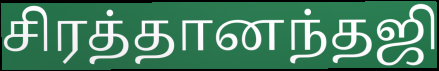
சிரத்தானந்தஜி